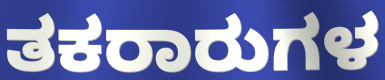
ತಕರಾರುಗಳ